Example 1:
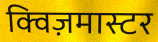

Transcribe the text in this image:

क्विज़मास्टर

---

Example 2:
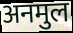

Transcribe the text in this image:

अनमुल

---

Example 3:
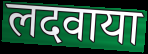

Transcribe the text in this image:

लदवाया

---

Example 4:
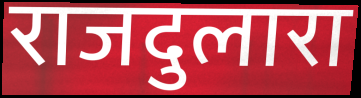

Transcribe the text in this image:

राजदुलारा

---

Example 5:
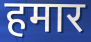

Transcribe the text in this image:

हमार